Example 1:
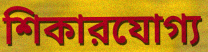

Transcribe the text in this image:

শিকারযোগ্য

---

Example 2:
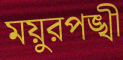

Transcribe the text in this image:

ময়ুরপঙ্খী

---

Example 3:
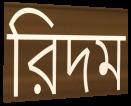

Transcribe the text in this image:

রিদম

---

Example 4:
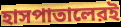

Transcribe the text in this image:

হাসপাতালেরই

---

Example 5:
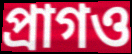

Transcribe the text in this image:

প্রাগও